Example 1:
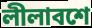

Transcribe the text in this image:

লীলাবশে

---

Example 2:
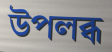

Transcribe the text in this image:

উপলব্ধ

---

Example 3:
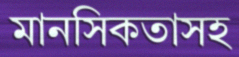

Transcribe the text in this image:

মানসিকতাসহ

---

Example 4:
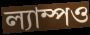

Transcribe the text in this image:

ল্যাম্পও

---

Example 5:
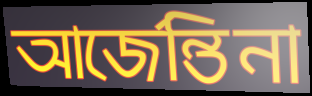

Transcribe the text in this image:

আর্জেন্তিনা